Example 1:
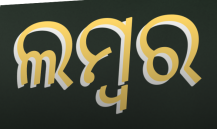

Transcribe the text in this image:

ଲମ୍ବର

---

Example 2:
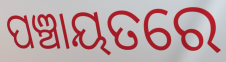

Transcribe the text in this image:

ପଞ୍ଚାୟତରେ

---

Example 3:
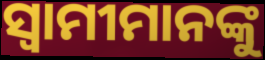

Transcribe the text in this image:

ସ୍ଵାମୀମାନଙ୍କୁ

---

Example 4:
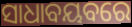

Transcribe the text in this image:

ସାଧାବୟବରେ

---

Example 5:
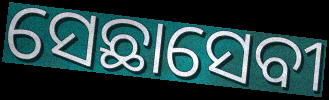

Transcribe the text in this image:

ସେଛାସେବୀ